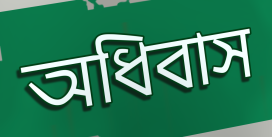
অধিবাস